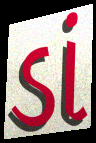
ડાં